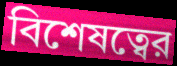
বিশেষত্বের